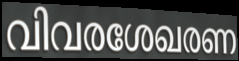
വിവരശേഖരണ